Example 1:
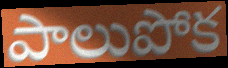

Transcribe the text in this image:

పాలుపోక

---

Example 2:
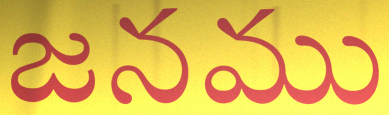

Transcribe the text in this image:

జనము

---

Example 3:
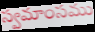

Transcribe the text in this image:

స్వమాంసము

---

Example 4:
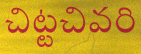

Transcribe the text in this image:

చిట్టచివరి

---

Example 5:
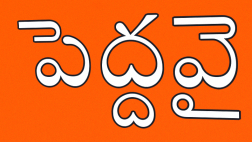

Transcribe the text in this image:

పెద్దవై